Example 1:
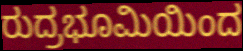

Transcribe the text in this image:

ರುದ್ರಭೂಮಿಯಿಂದ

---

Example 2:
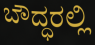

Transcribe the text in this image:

ಬೌದ್ಧರಲ್ಲಿ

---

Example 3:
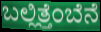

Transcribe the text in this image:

ಬಲ್ಲಿತ್ತೆಂಬೆನೆ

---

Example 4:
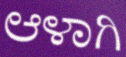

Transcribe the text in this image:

ಆಳಾಗಿ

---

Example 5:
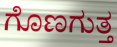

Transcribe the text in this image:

ಗೊಣಗುತ್ತ